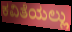
ಕವಿತೆಯಲ್ಲು